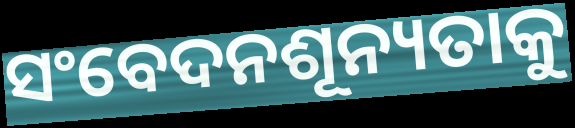
ସଂବେଦନଶୂନ୍ୟତାକୁ